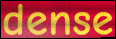
dense